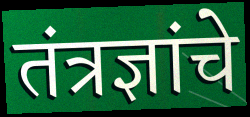
तंत्रज्ञांचे